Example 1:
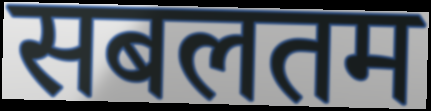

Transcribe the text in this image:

सबलतम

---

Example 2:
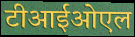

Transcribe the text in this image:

टीआईओएल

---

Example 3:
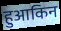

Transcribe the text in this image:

हुआकिन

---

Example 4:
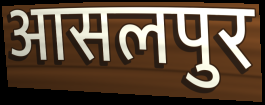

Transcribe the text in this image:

आसलपुर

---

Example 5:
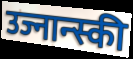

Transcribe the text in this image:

उज्नान्स्की